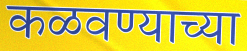
कळवण्याच्या